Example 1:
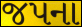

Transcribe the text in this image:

જપના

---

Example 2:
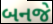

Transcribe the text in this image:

બનજે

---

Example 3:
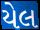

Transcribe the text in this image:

યેલ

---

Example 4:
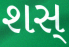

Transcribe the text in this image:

શસ્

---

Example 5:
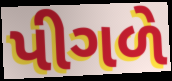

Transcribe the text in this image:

પીગળે